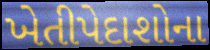
ખેતીપેદાશોના